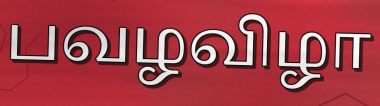
பவழவிழா